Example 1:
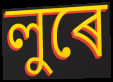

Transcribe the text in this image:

লুৰে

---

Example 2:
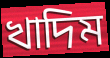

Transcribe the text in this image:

খাদিম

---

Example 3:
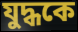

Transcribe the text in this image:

যুদ্ধকে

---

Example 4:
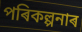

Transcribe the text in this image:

পৰিকল্পনাৰ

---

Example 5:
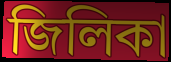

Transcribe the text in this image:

জিলিকা